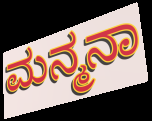
ಮನ್ಮನಾ